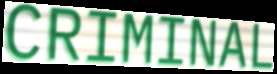
CRIMINAL